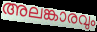
അലങ്കാരവും